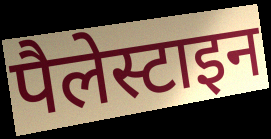
पैलेस्टाइन